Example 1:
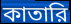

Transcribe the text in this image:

কাতারি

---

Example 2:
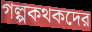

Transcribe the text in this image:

গল্পকথকদের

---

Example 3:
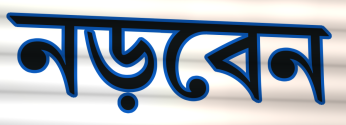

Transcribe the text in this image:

নড়বেন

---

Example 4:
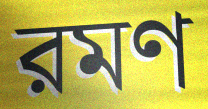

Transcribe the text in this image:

রমণ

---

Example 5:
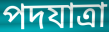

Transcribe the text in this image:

পদযাত্রা